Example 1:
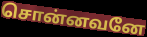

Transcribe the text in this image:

சொன்னவனே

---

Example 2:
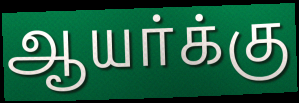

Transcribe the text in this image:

ஆயர்க்கு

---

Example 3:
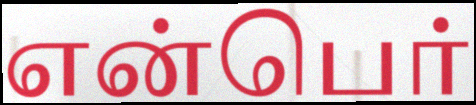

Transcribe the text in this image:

என்பெர்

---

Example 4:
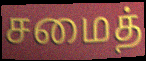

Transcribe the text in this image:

சமைத்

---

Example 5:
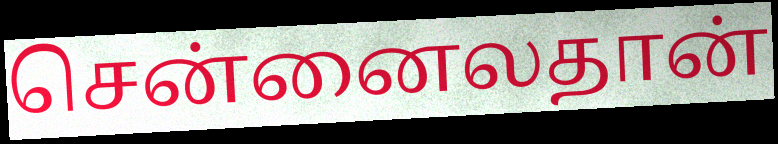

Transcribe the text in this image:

சென்னைலதான்